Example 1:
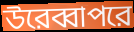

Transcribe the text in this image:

উরেব্বাপরে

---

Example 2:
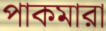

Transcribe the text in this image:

পাকমারা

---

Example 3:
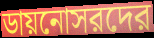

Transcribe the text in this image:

ডায়নোসরদের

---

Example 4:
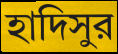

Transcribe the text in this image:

হাদিসুর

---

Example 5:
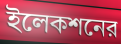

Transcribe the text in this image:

ইলেকশনের